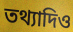
তথ্যাদিও